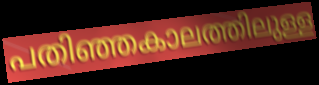
പതിഞ്ഞകാലത്തിലുള്ള